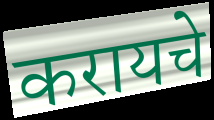
करायचे